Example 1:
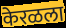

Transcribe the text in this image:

केरळला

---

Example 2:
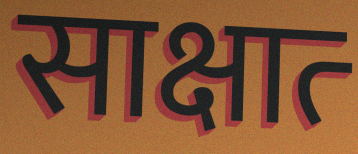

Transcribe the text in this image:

साक्षात्‍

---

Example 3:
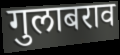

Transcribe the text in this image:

गुलाबराव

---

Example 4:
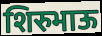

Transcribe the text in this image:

शिरुभाऊ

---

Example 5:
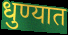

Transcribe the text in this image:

धुण्यात